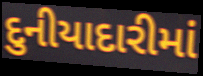
દુનીયાદારીમાં